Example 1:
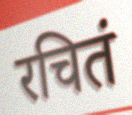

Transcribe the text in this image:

रचितं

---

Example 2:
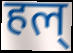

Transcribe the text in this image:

हल्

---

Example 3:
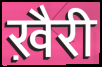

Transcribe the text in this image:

ख़ैरी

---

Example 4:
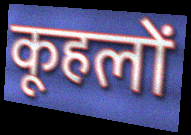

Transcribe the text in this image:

कूहलों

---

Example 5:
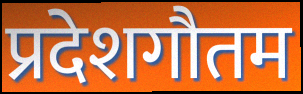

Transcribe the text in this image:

प्रदेशगौतम